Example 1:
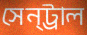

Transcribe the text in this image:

সেন্‌ট্রাল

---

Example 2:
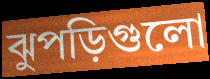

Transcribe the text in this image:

ঝুপড়িগুলো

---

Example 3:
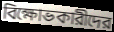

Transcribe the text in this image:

বিক্ষোভকারীদের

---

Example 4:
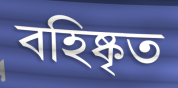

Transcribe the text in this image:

বহিষ্কৃত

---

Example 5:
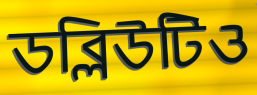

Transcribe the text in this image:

ডব্লিউটিও